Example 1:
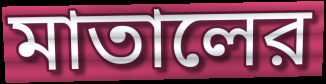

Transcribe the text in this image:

মাতালের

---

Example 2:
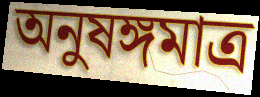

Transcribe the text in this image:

অনুষঙ্গমাত্র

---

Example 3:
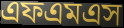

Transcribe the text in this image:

এফএমএস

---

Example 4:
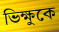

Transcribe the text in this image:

ভিক্ষুকে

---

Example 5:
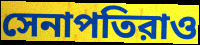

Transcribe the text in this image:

সেনাপতিরাও